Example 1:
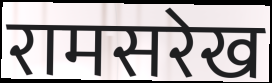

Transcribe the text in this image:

रामसरेख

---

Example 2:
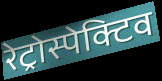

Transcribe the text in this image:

रेट्रोस्पेक्टिव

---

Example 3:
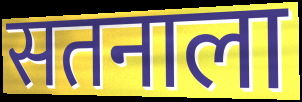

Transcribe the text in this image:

सतनाला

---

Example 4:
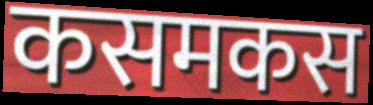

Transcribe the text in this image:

कसमकस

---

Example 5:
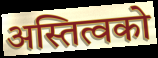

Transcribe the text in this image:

अस्तित्वको